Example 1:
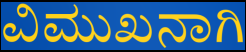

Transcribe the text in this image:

ವಿಮುಖನಾಗಿ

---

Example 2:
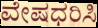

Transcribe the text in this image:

ವೇಷಧರಿಸಿ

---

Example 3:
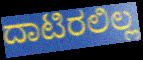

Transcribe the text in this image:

ದಾಟಿರಲಿಲ್ಲ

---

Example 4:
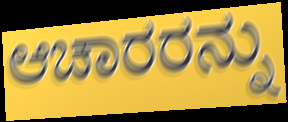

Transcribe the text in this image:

ಆಚಾರರನ್ನು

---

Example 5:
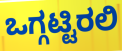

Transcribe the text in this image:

ಒಗ್ಗಟ್ಟಿರಲಿ